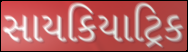
સાયકિયાટ્રિક